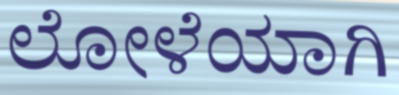
ಲೋಳೆಯಾಗಿ